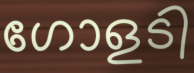
ഗോളടി